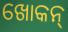
ଖୋକନ୍